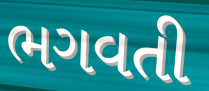
ભગવતી